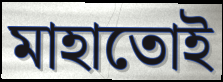
মাহাতোই